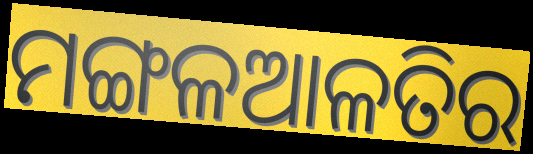
ମଙ୍ଗଳଆଳତିର